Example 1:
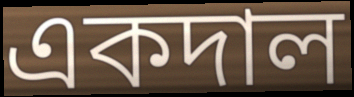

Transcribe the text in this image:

একদাল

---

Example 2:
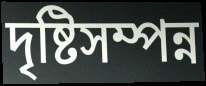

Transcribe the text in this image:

দৃষ্টিসম্পন্ন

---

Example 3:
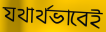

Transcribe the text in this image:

যথার্থভাবেই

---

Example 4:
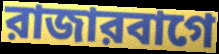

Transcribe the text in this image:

রাজারবাগে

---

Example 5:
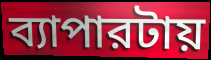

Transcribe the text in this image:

ব্যাপারটায়